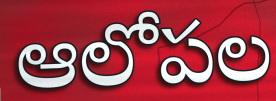
ఆలోపల